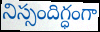
నిస్సందిగ్ధంగా